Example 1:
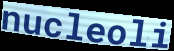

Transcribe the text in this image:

nucleoli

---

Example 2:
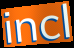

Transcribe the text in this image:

incl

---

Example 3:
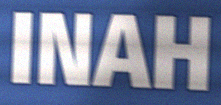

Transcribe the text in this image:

INAH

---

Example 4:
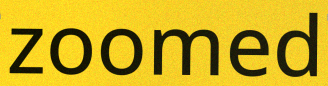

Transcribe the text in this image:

zoomed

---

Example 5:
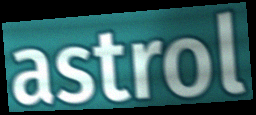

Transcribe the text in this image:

astrol